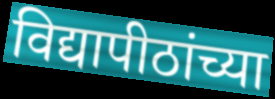
विद्यापीठांच्या